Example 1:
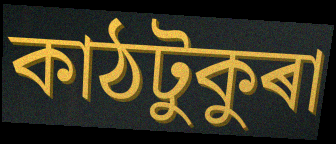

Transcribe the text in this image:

কাঠটুকুৰা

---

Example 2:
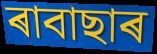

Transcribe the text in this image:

ৰাবাছাৰ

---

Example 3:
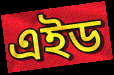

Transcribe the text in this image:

এইড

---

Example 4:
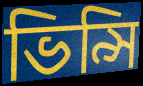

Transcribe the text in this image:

ভিন্সি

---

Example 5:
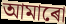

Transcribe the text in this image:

আমাৰো